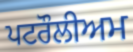
ਪਟਰੌਲੀਅਮ